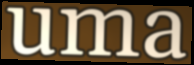
uma